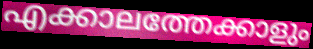
എക്കാലത്തേക്കാളും